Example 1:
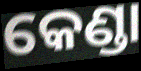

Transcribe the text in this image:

କେଣ୍ଡା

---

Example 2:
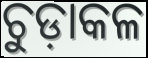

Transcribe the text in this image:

ଚୁଡ଼ାକଳ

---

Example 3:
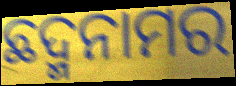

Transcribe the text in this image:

ଛଦ୍ମନାମର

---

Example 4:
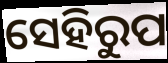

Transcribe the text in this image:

ସେହିରୁପ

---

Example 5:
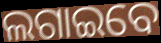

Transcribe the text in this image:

ଲଗାଇବେ